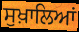
ਸੁਖ਼ਾਲਿਆਂ